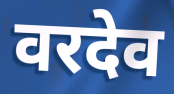
वरदेव